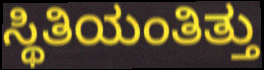
ಸ್ಥಿತಿಯಂತಿತ್ತು